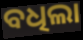
ବଧିଲା